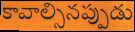
కావాల్సినప్పుడు